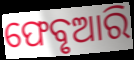
ଫେବୃଆରି